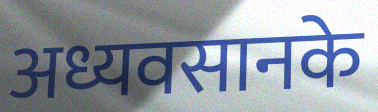
अध्यवसानके